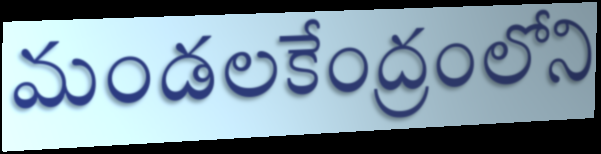
మండలకేంద్రంలోని